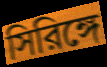
সিরিঙ্গে